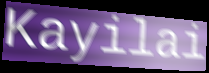
Kayilai